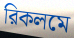
রিকলমে